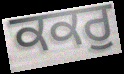
ਕਕਰੁ